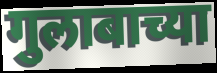
गुलाबाच्या